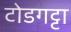
टोडगट्टा